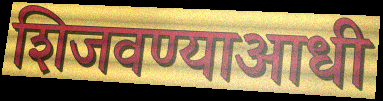
शिजवण्याआधी